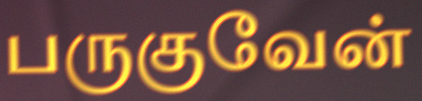
பருகுவேன்